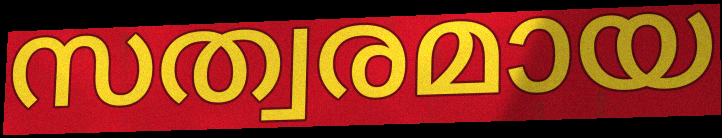
സത്വരമായ